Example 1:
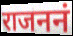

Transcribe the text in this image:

राजननं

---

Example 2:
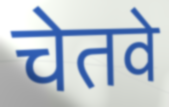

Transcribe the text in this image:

चेतवे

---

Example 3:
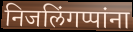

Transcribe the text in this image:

निजलिंगप्पांना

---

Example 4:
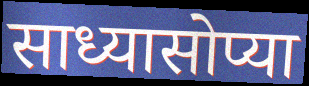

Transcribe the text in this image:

साध्यासोप्या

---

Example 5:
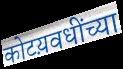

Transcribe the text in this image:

कोटय़वधींच्या